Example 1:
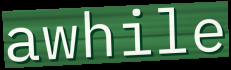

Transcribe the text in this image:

awhile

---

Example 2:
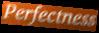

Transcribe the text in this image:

Perfectness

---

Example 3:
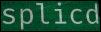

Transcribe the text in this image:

splicd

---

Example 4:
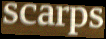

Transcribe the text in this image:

scarps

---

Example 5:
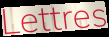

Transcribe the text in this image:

Lettres